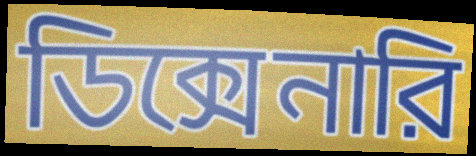
ডিক্সেনারি